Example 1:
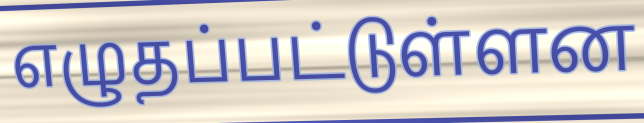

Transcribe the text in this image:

எழுதப்பட்டுள்ளன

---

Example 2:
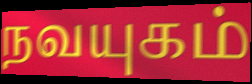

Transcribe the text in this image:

நவயுகம்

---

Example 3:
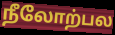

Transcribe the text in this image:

நீலோற்பல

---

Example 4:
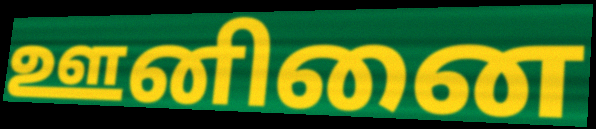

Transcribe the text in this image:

ஊனினை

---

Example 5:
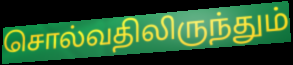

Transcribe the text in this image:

சொல்வதிலிருந்தும்